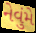
નેવુંમે